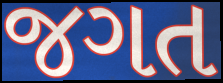
જગત